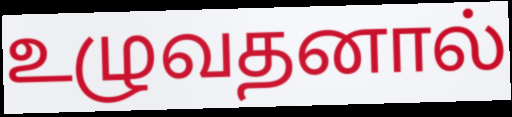
உழுவதனால்